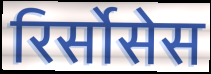
रिर्सोसेस